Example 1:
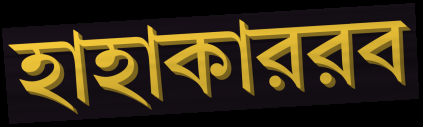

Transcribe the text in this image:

হাহাকাররব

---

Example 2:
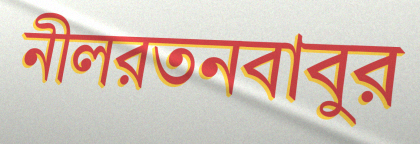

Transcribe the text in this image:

নীলরতনবাবুর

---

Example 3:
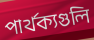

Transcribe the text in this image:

পার্থক্যগুলি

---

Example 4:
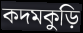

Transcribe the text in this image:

কদমকুড়ি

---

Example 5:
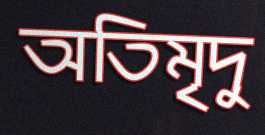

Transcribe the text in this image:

অতিমৃদু